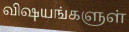
விஷயங்களுள்